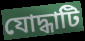
যোদ্ধাটি